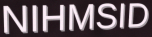
NIHMSID